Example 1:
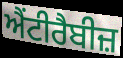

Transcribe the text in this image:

ਐਂਟੀਰੈਬੀਜ਼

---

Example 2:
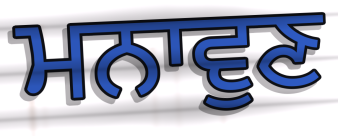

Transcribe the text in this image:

ਮਨਾਵੁਣ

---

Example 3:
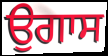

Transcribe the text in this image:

ਉਗਾਸ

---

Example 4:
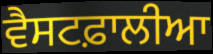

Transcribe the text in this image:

ਵੈਸਟਫ਼ਾਲੀਆ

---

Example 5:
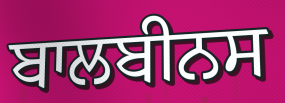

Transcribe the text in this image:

ਬਾਲਬੀਨਸ